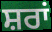
ਸ਼ਰਾਂ